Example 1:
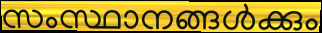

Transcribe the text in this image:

സംസ്ഥാനങ്ങൾക്കും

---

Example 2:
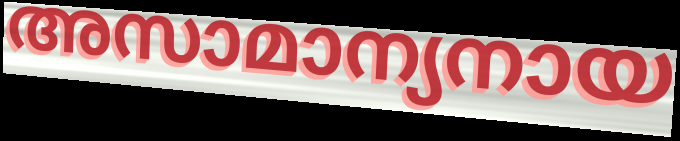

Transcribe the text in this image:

അസാമാന്യനായ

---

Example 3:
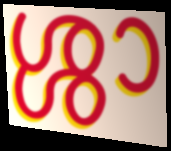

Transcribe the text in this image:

ശ്ശാ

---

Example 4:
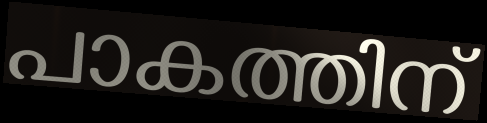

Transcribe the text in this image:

പാകത്തിന്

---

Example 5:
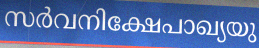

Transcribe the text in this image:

സർവനിക്ഷേപാഖ്യയു